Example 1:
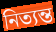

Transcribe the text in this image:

নিত্যন্ত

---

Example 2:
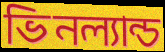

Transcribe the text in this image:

ভিনল্যান্ড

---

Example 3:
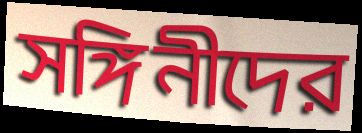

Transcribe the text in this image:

সঙ্গিনীদের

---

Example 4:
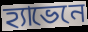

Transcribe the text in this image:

হ্যাভেনে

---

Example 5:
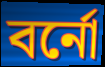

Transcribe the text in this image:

বর্নো